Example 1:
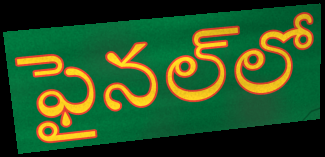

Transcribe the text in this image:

ఫైనల్‌లో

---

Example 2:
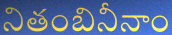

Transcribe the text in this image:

నితంబినీనాం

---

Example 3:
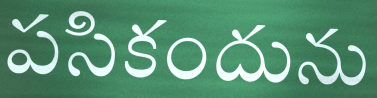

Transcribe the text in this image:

పసికందును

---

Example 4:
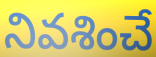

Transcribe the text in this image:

నివశించే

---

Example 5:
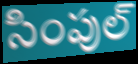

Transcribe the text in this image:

సింపుల్